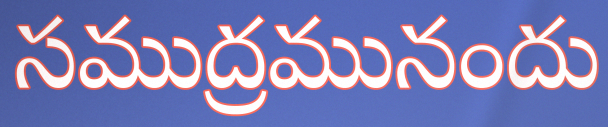
సముద్రమునందు